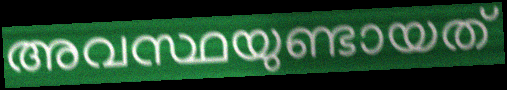
അവസ്ഥയുണ്ടായത്